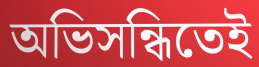
অভিসন্ধিতেই